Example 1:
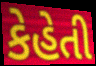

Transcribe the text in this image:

કેહેતી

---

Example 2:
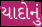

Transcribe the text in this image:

યાદોનું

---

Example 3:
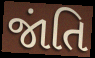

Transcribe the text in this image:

જાંતિ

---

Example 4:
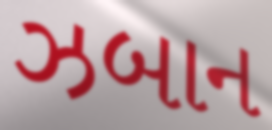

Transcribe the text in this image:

ઝબાન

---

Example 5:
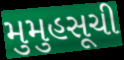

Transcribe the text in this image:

મુમુહસૂચી